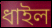
ধাইল